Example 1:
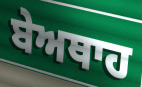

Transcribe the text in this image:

ਬੇਅਥਾਹ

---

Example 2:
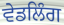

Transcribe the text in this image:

ਵੇਡਲਿੰਗ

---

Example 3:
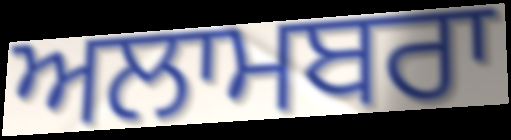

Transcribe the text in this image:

ਅਲਾਮਬਰਾ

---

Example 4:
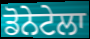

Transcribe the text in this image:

ਡੋਨੇਟੇਲਾ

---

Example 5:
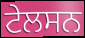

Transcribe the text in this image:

ਟੇਲਸਨ